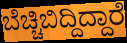
ಬೆಚ್ಚಿಬಿದ್ದಿದ್ದಾರೆ